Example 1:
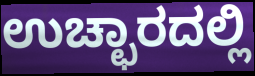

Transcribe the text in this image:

ಉಚ್ಛಾರದಲ್ಲಿ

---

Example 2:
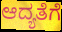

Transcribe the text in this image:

ಆದ್ಯತೆಗೆ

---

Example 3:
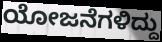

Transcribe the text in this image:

ಯೋಜನೆಗಳಿದ್ದು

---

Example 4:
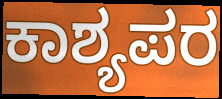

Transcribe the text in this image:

ಕಾಶ್ಯಪರ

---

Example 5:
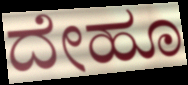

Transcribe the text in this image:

ದೇಹೂ